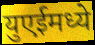
युएईमध्ये